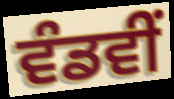
ਵੰਡਵੀਂ